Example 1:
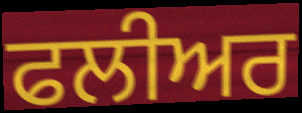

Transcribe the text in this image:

ਫਲੀਅਰ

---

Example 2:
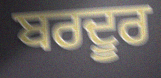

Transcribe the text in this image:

ਬਰਦੂਰ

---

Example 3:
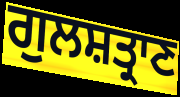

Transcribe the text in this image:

ਗੁਲਸ਼ਤ੍ਰਾਣ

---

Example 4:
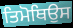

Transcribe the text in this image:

ਤਿਮੋਥਿਉਸ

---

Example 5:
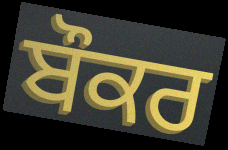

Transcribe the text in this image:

ਬੌਕਰ